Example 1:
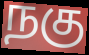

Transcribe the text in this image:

நகு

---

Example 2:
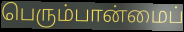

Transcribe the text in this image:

பெரும்பான்மைப்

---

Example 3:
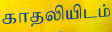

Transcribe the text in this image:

காதலியிடம்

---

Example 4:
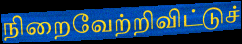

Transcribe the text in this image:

நிறைவேற்றிவிட்டுச்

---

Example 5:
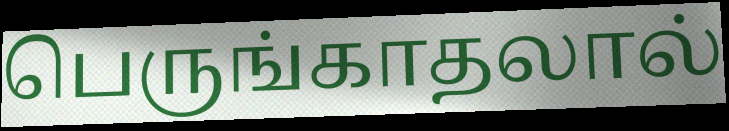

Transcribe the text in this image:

பெருங்காதலால்